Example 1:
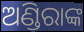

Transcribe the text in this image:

ଅଣ୍ଡିରାଙ୍କ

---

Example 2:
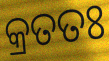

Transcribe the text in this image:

କ୍ରତତଃ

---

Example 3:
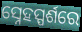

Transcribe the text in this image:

ସ୍ନେହସ୍ପର୍ଶରେ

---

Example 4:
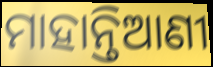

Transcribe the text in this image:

ମାହାନ୍ତିଆଣୀ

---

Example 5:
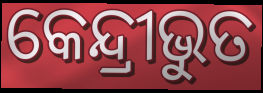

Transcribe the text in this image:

କେନ୍ଦ୍ରୀଭୁତ